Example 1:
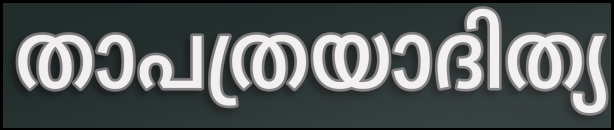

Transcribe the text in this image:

താപത്രയാദിത്യ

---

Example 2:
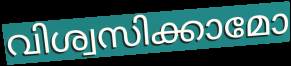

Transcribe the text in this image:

വിശ്വസിക്കാമോ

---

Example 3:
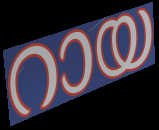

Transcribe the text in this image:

റായ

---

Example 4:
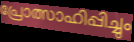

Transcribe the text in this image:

പ്രോത്സാഹിപ്പിച്ചും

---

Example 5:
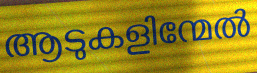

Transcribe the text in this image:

ആടുകളിന്മേൽ